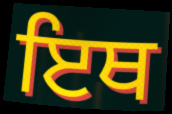
ਇਥ